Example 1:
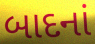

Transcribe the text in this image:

બાદનાં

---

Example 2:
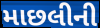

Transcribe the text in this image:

માછલીની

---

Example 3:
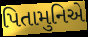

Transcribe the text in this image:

પિતામુનિએ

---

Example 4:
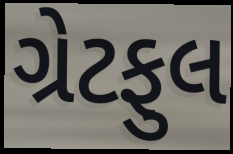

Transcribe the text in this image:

ગ્રેટફુલ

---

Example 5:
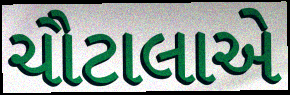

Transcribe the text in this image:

ચૌટાલાએ